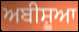
ਅਬੀਸ਼ੂਆ